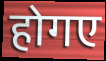
होगए